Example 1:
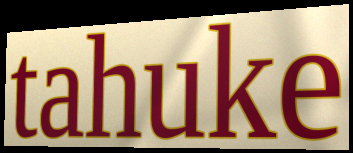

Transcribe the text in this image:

tahuke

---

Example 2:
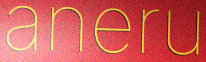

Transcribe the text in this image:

aneru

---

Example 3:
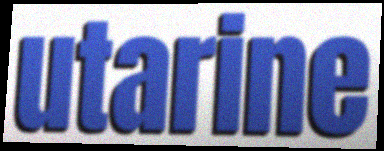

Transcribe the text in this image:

utarine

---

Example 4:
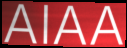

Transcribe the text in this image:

AIAA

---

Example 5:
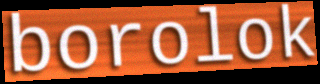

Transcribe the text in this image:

borolok